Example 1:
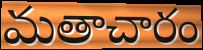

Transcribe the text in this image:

మతాచారం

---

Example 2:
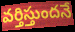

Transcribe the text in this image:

వర్తిస్తుందనే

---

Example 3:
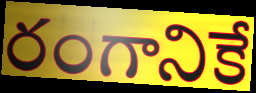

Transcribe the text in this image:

రంగానికే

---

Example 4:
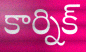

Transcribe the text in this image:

కార్నిక్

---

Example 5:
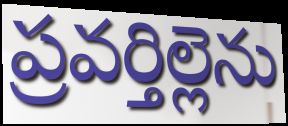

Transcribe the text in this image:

ప్రవర్తిల్లెను